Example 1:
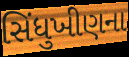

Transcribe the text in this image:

સિંધુખીણના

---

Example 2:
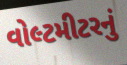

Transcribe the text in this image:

વોલ્ટમીટરનું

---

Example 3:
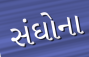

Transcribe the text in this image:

સંઘોના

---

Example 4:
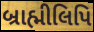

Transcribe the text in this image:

બ્રાહ્મીલિપિ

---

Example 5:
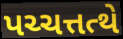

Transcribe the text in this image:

પચ્ચત્તત્થે